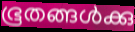
ഭൂതങ്ങൾക്കു